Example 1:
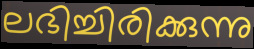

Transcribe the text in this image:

ലഭിച്ചിരിക്കുന്നു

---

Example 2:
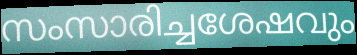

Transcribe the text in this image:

സംസാരിച്ചശേഷവും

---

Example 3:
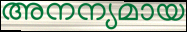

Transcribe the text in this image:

അനന്യമായ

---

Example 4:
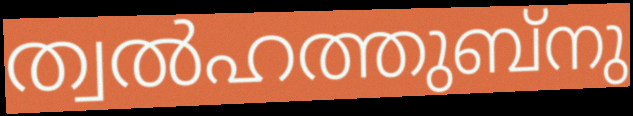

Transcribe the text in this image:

ത്വൽഹത്തുബ്നു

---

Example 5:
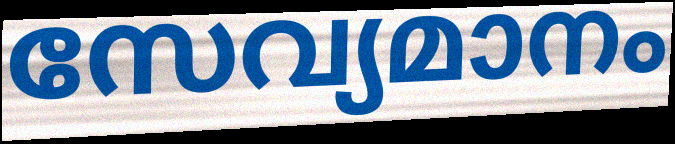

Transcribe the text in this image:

സേവ്യമാനം